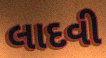
લાદવી